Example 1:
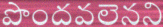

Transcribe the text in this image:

పొందవలెనని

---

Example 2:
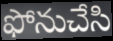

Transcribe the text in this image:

ఫోనుచేసి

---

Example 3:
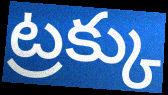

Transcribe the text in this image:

ట్రక్కు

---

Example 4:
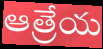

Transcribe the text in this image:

ఆత్రేయ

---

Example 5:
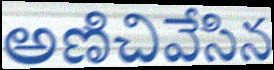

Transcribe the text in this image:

అణిచివేసిన